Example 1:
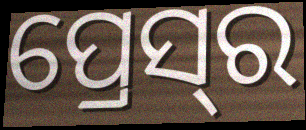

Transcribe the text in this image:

ପ୍ରେସ୍‌ର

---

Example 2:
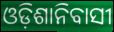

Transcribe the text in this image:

ଓଡ଼ିଶାନିବାସୀ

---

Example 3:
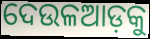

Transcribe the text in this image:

ଦେଉଳଆଡ଼କୁ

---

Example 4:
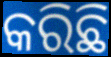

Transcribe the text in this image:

କରିଛି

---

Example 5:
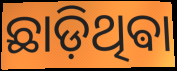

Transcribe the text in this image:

ଛାଡ଼ିଥିଵା